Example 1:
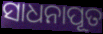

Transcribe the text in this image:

ସାଧନାପୂତ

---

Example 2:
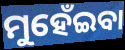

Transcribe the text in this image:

ମୁହେଁଇବା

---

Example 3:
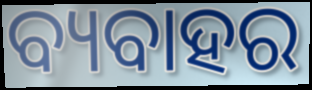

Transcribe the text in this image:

ବ୍ୟବାହର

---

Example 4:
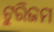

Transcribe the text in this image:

ଟୁରିଜମ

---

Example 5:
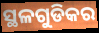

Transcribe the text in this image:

ସ୍ଥଳଗୁଡିକର